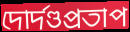
দোর্দণ্ডপ্রতাপ